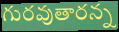
గురవుతారన్న